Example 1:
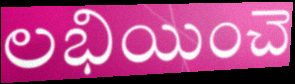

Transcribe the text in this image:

లభియించె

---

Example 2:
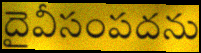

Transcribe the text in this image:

దైవీసంపదను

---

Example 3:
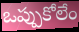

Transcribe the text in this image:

ఒప్పుకోలేం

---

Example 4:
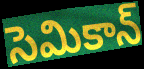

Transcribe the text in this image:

సెమికాన్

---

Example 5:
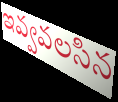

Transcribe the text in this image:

ఇవ్వవలసిన